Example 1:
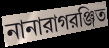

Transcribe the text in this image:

নানারাগরঞ্জিত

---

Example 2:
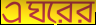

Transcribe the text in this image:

এঘরের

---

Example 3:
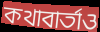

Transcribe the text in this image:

কথাবার্তাও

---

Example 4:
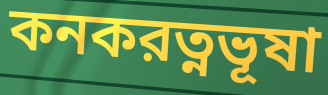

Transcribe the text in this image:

কনকরত্নভূষা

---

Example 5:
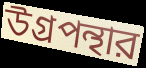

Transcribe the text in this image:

উগ্রপন্থার